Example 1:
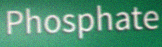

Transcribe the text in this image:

Phosphate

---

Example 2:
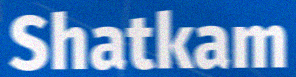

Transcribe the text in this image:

Shatkam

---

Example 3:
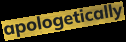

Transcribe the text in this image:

apologetically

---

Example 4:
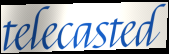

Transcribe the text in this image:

telecasted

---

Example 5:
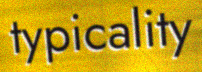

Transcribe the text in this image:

typicality